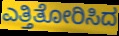
ಎತ್ತಿತೋರಿಸಿದ